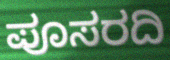
ಪೂಸರದಿ